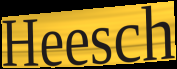
Heesch